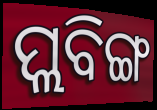
ପ୍ଲବିଙ୍ଗ